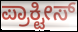
ಪ್ರಾಕ್ಟೀಸ್